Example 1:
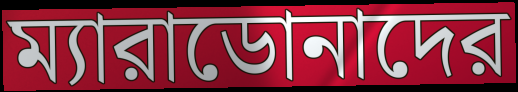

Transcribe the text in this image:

ম্যারাডোনাদের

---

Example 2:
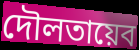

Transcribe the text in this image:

দৌলতায়েব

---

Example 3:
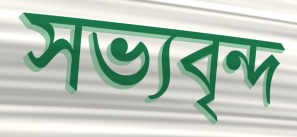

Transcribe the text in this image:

সভ্যবৃন্দ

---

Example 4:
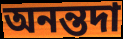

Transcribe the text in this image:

অনন্তদা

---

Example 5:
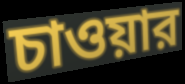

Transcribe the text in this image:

চাওয়ার